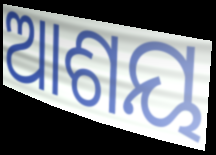
ଆଶୟ